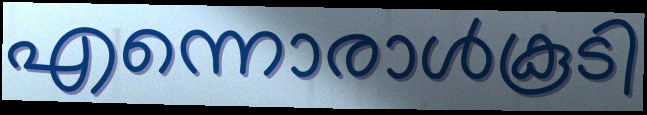
എന്നൊരാൾകൂടി